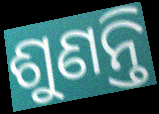
ଶୁଣନ୍ତି